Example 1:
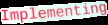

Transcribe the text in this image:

Implementing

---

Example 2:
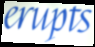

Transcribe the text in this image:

erupts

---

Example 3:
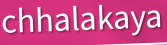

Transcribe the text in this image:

chhalakaya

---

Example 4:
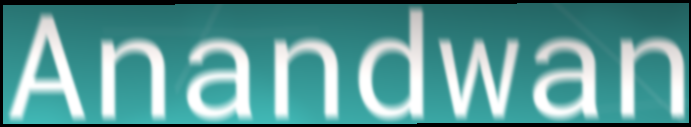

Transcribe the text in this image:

Anandwan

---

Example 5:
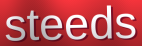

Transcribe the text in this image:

steeds